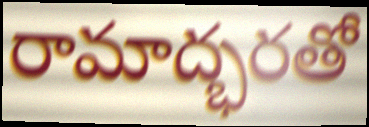
రామాద్భరతో